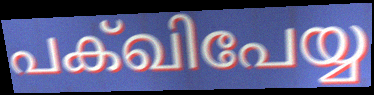
പക്ഖിപേയ്യ